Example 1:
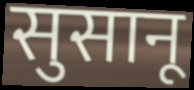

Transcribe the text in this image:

सुसानू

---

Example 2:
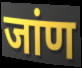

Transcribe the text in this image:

जांण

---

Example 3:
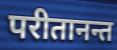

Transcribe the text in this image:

परीतानन्त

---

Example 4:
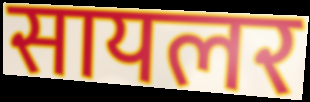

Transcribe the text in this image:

सायलर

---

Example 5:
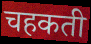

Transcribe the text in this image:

चहकती